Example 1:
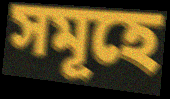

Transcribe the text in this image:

সমূহে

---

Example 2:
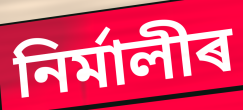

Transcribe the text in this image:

নিৰ্মালীৰ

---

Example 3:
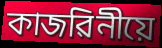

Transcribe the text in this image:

কাজৱিনীয়ে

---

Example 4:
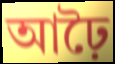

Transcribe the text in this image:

আঢ়ৈ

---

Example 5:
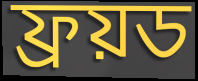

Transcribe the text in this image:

ফ্ৰয়ড